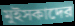
মুইসকাদের